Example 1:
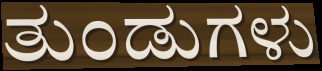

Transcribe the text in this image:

ತುಂಡುಗಳು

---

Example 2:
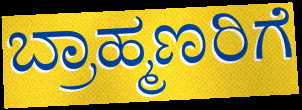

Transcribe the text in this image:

ಬ್ರಾಹ್ಮಣರಿಗೆ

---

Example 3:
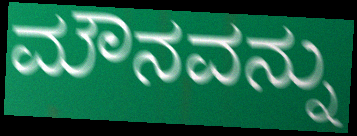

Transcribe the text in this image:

ಮೌನವನ್ನು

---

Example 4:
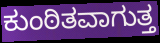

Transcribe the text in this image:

ಕುಂಠಿತವಾಗುತ್ತ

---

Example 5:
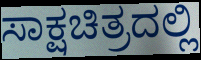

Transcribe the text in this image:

ಸಾಕ್ಷಚಿತ್ರದಲ್ಲಿ